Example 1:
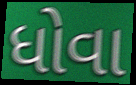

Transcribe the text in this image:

ધોવા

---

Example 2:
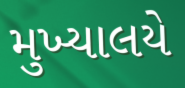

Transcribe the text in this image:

મુખ્યાલયે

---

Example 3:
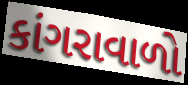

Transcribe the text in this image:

કાંગરાવાળો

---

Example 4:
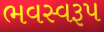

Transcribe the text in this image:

ભવસ્વરૂપ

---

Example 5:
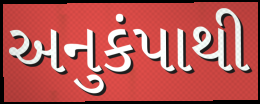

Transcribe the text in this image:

અનુકંપાથી